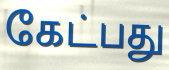
கேட்பது